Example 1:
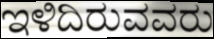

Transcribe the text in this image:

ಇಳಿದಿರುವವರು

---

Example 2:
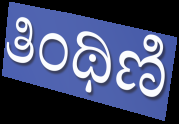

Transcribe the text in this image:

ತಿಂಥಿಣಿ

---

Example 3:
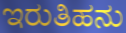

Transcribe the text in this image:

ಇರುತಿಹನು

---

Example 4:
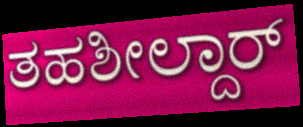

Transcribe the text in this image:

ತಹಶೀಲ್ದಾರ್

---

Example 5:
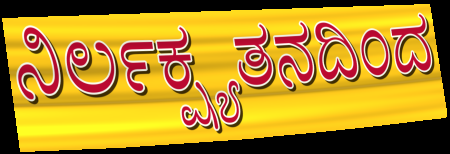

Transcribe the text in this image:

ನಿರ್ಲಕ್ಷ್ಯತನದಿಂದ